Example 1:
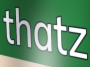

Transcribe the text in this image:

thatz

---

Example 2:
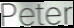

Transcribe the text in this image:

Peter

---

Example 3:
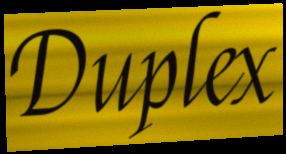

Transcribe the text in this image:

Duplex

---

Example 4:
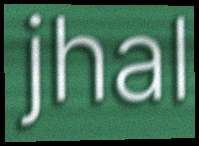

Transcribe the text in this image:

jhal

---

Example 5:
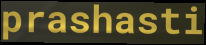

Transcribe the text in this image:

prashasti